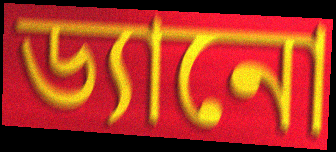
ড্যানো